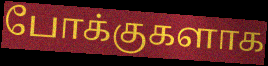
போக்குகளாக